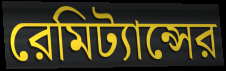
রেমিট্যান্সের